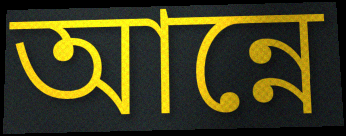
আন্নে